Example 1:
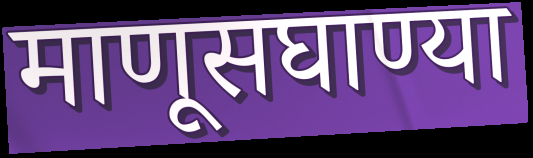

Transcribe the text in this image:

माणूसघाण्या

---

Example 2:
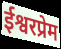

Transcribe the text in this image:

ईश्वरप्रेम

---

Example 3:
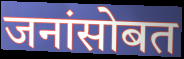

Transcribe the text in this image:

जनांसोबत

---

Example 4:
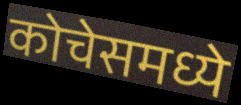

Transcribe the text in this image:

कोचेसमध्ये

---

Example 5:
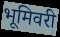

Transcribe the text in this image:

भूमिवरी